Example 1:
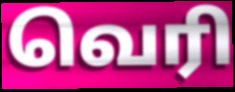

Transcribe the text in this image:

வெரி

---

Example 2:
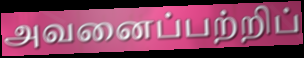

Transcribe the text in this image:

அவனைப்பற்றிப்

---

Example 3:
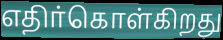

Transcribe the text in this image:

எதிர்கொள்கிறது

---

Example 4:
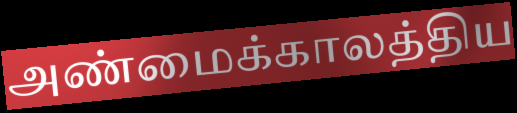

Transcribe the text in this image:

அண்மைக்காலத்திய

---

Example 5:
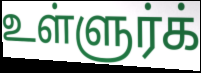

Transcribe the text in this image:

உள்ளுர்க்